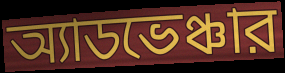
অ্যাডভেঞ্চার